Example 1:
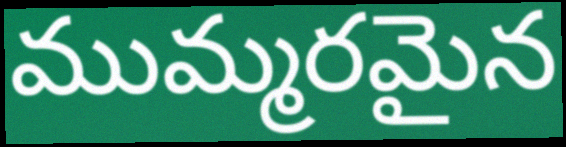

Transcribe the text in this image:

ముమ్మరమైన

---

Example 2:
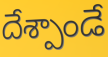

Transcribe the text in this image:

దేశ్పాండే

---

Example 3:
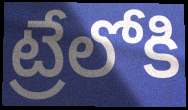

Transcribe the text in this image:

ట్రేలోకి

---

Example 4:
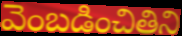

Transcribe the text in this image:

వెంబడించితిని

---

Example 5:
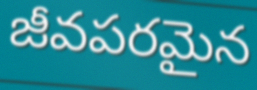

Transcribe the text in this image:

జీవపరమైన